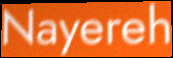
Nayereh